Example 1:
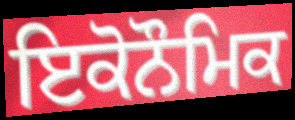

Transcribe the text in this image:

ਇਕੋਨੌਮਿਕ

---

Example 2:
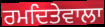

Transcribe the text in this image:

ਰਮਦਿਤੇਵਾਲਾ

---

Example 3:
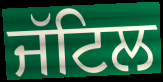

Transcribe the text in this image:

ਜੱਟਿਲ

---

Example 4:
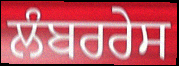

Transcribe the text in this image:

ਲੰਬਰਰੇਸ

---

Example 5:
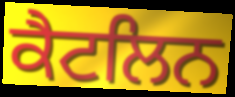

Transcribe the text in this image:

ਕੈਟਲਿਨ